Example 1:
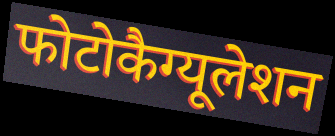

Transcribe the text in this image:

फोटोकैग्यूलेशन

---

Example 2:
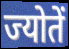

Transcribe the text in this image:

ज्योतें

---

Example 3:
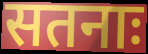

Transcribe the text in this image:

सतनाः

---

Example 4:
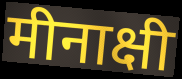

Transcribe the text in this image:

मीनाक्षी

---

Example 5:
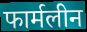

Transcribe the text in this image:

फार्मलीन